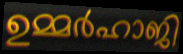
ഉമ്മർഹാജി